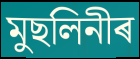
মুছলিনীৰ